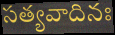
సత్యవాదినః